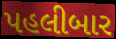
પહલીબાર